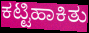
ಕಟ್ಟಿಹಾಕಿತು